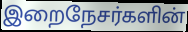
இறைநேசர்களின்